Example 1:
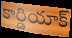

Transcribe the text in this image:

కార్డియాక్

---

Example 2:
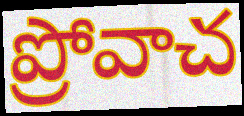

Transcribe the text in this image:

ప్రోవాచ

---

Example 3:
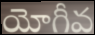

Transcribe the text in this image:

యోగీవ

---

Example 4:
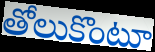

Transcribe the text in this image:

తోలుకొంటూ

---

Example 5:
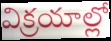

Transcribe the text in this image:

విక్రయాల్లో